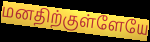
மனதிற்குள்ளேயே